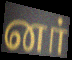
னர்